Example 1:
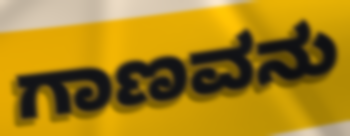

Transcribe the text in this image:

ಗಾಣವನು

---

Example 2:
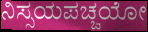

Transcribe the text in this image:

ನಿಸ್ಸಯಪಚ್ಚಯೋ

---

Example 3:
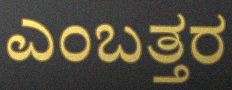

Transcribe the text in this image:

ಎಂಬತ್ತರ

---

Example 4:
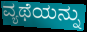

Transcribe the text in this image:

ವ್ಯಥೆಯನ್ನು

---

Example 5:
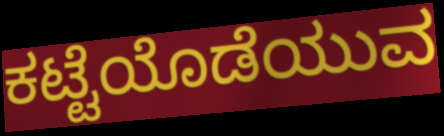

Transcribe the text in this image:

ಕಟ್ಟೆಯೊಡೆಯುವ